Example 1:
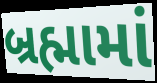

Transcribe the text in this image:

બ્રહ્મામાં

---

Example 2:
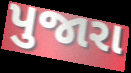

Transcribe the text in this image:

પુજારા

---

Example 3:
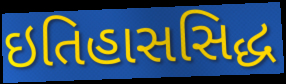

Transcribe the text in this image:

ઇતિહાસસિદ્ધ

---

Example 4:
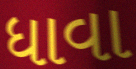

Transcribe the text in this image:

ધાવા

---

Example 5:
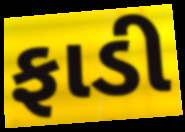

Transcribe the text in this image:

ફાડી